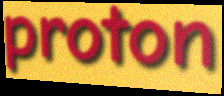
proton